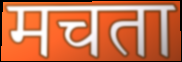
मचता